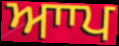
ਆਾਪ